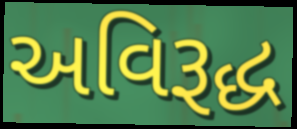
અવિરૂદ્ધ